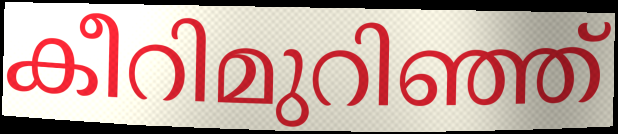
കീറിമുറിഞ്ഞ്